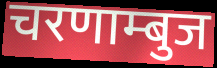
चरणाम्बुज